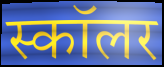
स्कॉलर